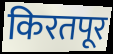
किरतपूर